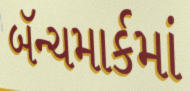
બૅન્ચમાર્કમાં